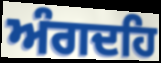
ਅੰਗਦਹਿ